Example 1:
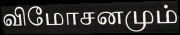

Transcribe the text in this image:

விமோசனமும்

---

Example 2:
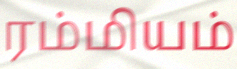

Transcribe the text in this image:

ரம்மியம்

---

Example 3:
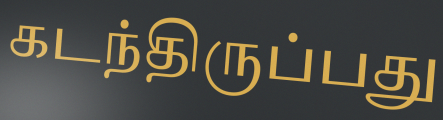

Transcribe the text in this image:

கடந்திருப்பது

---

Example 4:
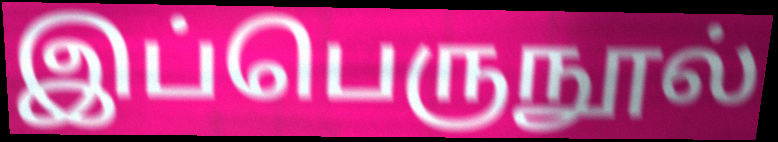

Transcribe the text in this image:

இப்பெருநூல்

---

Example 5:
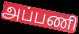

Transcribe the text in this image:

அப்பணி